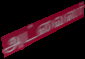
அட்வைஸர்